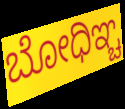
ಬೋಧಿಞ್ಚ